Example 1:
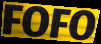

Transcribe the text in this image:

FOFO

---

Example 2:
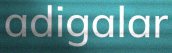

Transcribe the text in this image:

adigalar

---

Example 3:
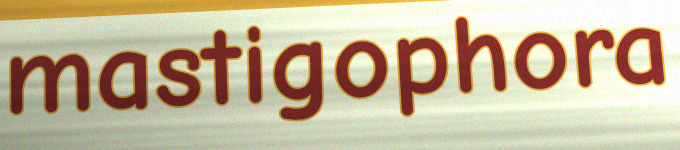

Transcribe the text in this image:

mastigophora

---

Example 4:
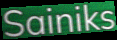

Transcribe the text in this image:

Sainiks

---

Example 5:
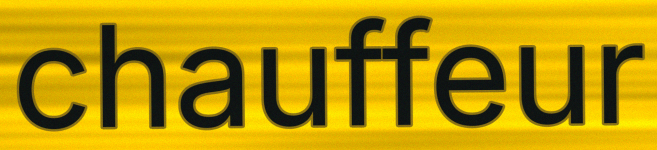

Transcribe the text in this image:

chauffeur